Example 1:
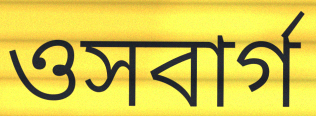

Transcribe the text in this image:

ওসবার্গ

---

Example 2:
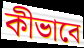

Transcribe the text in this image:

কীভাবে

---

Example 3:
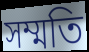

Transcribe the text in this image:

সম্মতি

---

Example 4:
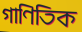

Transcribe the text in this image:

গাণিতিক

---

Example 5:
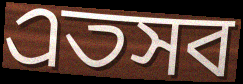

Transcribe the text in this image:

এতসব